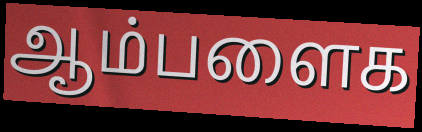
ஆம்பளைக